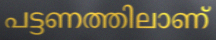
പട്ടണത്തിലാണ്